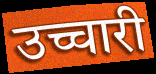
उच्चारी